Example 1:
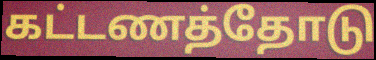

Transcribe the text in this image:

கட்டணத்தோடு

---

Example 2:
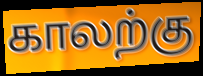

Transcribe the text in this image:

காலற்கு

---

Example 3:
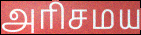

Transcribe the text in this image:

அரிசமய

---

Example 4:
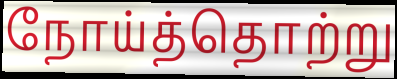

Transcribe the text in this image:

நோய்த்தொற்று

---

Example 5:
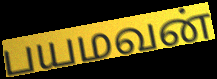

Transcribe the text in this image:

பயமவன்